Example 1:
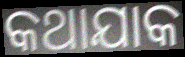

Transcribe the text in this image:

କଥାଯାକ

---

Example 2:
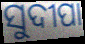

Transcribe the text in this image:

ସୁଦୀପା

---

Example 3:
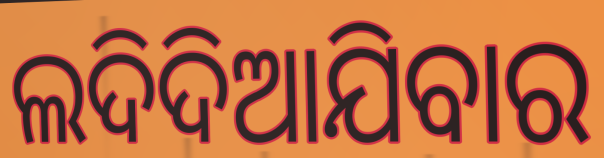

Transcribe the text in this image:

ଲଦିଦିଆଯିବାର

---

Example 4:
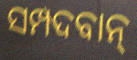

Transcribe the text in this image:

ସମ୍ପଦବାନ୍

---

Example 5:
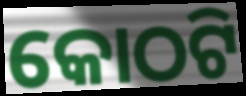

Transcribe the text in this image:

କୋଠଟି